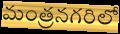
మంత్రనగరిలో